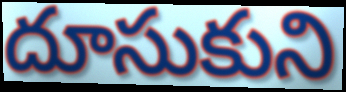
దూసుకుని